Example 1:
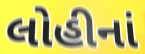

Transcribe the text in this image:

લોહીનાં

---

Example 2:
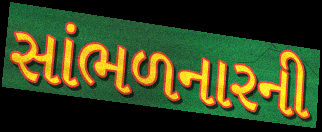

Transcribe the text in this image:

સાંભળનારની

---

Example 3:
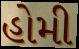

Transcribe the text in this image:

હોમી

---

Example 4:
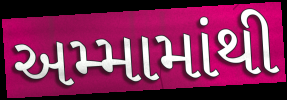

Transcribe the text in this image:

અમ્મામાંથી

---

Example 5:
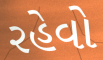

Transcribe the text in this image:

રહેવો